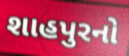
શાહપુરનો